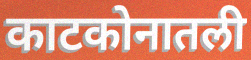
काटकोनातली